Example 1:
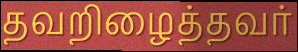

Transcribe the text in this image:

தவறிழைத்தவர்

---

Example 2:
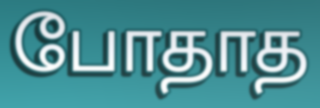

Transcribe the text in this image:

போதாத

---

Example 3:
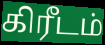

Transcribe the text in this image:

கிரீடம்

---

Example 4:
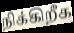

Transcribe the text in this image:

நிக்கிறீக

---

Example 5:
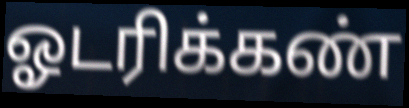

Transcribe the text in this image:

ஓடரிக்கண்